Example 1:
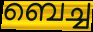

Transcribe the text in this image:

ബെച്ച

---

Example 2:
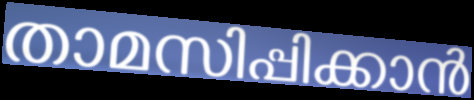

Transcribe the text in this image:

താമസിപ്പിക്കാൻ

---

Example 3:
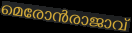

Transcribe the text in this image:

മെരോൻരാജാവ്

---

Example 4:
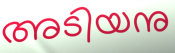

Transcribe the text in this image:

അടിയനു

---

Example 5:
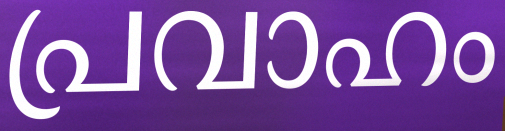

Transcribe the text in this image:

പ്രവാഹം